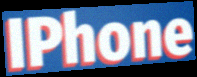
IPhone